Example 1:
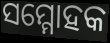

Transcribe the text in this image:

ସମ୍ମୋହକ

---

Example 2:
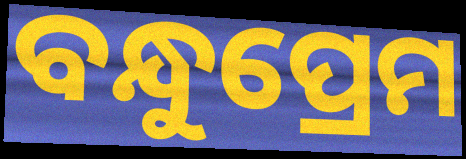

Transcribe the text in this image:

ବନ୍ଧୁପ୍ରେମ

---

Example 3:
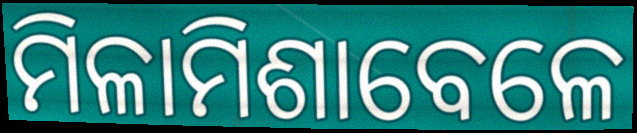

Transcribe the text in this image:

ମିଳାମିଶାବେଳେ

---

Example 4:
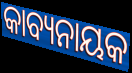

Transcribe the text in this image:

କାବ୍ୟନାୟକ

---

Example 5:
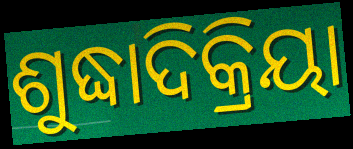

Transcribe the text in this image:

ଶୁଦ୍ଧାଦିକ୍ରିୟା